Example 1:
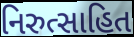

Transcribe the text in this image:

નિરુત્સાહિત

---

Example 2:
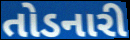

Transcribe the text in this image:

તોડનારી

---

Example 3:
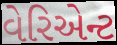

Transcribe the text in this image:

વેરિએન્ટ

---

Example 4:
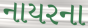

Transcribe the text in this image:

નાયરના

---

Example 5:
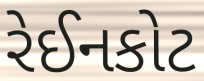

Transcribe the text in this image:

રેઈનકોટ